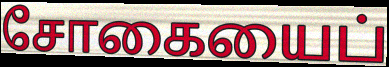
சோகையைப்